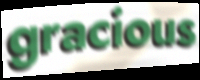
gracious